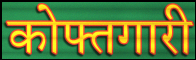
कोफ्तगारी